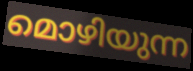
മൊഴിയുന്ന